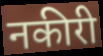
नकीरी